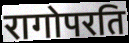
रागोपरति